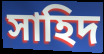
সাহিদ